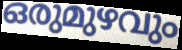
ഒരുമുഴവും